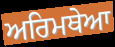
ਅਰਿਮਥੇਆ